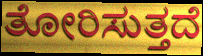
ತೋರಿಸುತ್ತದೆ